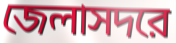
জেলাসদরে